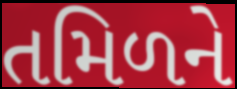
તમિળને